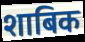
शाबिक